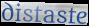
distaste